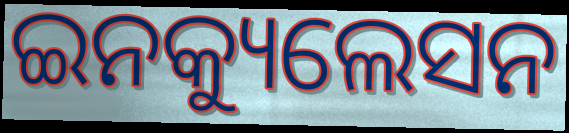
ଇନକ୍ୟୁଲେସନ